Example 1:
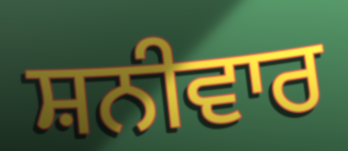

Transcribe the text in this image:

ਸ਼ਨੀਵਾਰ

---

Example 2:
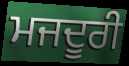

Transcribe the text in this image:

ਮਜਦੂਰੀ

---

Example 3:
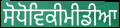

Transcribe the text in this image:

ਸੋਧੋਵਿਕੀਮੀਡੀਆ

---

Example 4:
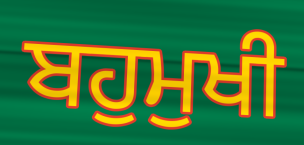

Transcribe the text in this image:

ਬਹੁਮੁਖੀ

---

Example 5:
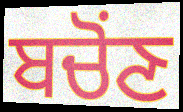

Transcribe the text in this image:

ਬਚੋਂਣ